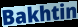
Bakhtin